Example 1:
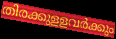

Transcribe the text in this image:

തിരക്കുളളവർക്കും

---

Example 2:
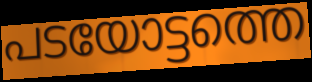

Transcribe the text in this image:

പടയോട്ടത്തെ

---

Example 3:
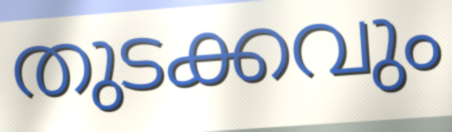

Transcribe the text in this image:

തുടക്കവും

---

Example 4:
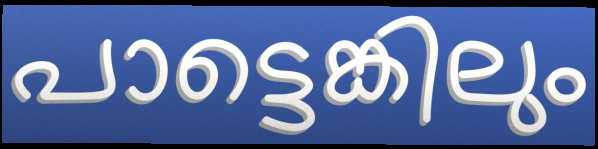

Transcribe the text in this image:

പാട്ടെങ്കിലും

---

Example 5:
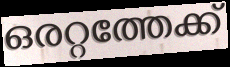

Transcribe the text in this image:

ഒരറ്റത്തേക്ക്